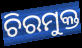
ଚିରମୁକ୍ତ